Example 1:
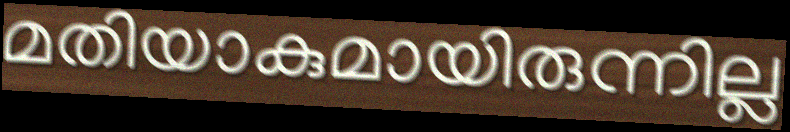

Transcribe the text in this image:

മതിയാകുമായിരുന്നില്ല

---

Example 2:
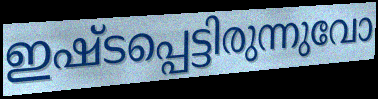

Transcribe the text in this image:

ഇഷ്ടപ്പെട്ടിരുന്നുവോ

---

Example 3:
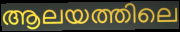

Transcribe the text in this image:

ആലയത്തിലെ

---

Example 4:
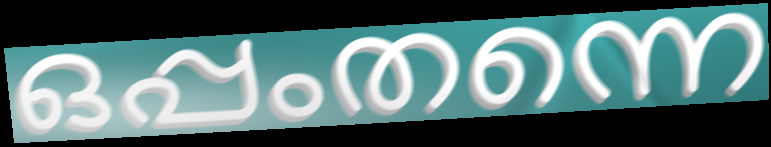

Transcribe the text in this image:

ഒപ്പംതന്നെ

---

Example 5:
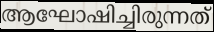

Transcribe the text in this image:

ആഘോഷിച്ചിരുന്നത്